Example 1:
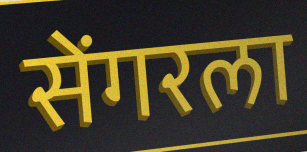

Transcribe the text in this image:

सेंगरला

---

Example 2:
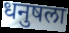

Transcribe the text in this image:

धनुषला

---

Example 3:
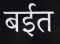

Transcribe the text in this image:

बईत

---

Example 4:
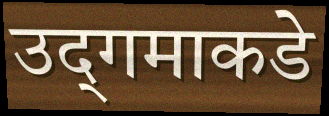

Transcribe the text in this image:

उद्‌गमाकडे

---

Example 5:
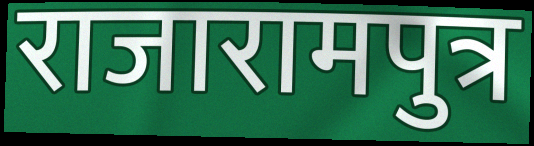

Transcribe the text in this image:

राजारामपुत्र